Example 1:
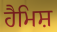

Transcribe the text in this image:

ਹੈਮਿਸ਼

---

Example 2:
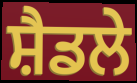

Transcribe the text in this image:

ਸ਼ੈਡਲੇ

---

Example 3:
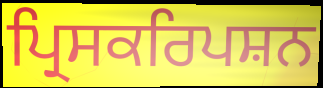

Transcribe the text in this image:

ਪ੍ਰਿਸਕਰਿਪਸ਼ਨ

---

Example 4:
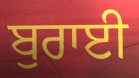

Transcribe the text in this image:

ਬੁਰਾਈ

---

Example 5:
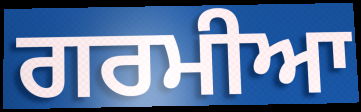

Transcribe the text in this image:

ਗਰਮੀਆ